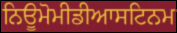
ਨਿਊਮੋਮੀਡੀਆਸਟਿਨਮ